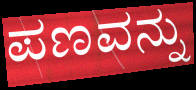
ಪಣವನ್ನು